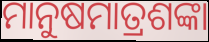
ମାନୁଷମାତ୍ରଶଙ୍କା